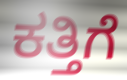
ಕತ್ತಿಗೆ